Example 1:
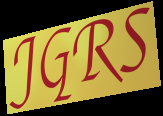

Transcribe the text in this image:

JGRS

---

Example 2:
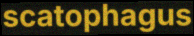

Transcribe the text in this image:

scatophagus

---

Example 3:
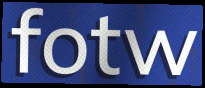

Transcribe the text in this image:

fotw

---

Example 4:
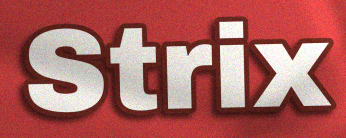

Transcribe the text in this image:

Strix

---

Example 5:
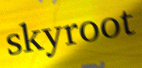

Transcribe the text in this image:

skyroot